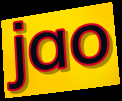
jao